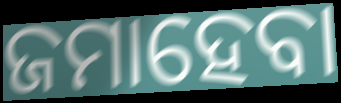
ଜମାହେବା